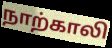
நாற்காலி